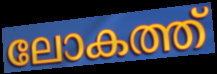
ലോകത്ത്